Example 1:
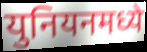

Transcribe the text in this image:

युनियनमध्ये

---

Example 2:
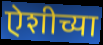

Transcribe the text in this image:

ऐशीच्या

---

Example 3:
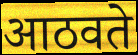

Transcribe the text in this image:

आठवते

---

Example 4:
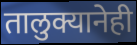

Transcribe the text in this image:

तालुक्यानेही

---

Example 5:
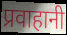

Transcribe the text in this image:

प्रवाहानी